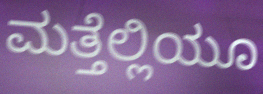
ಮತ್ತೆಲ್ಲಿಯೂ